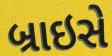
બ્રાઇસે